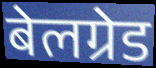
बेलग्रेड